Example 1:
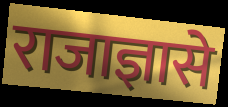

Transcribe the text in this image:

राजाज्ञासे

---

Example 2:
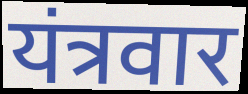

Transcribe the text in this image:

यंत्रवार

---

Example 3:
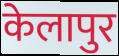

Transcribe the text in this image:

केलापुर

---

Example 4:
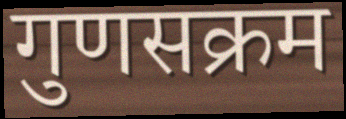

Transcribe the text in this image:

गुणसक्रम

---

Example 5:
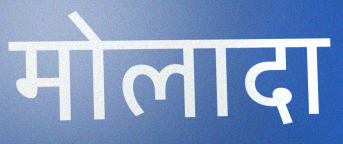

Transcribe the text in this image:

मोलादा